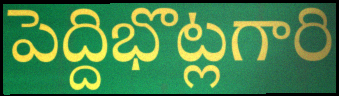
పెద్దిభొట్లగారి